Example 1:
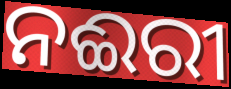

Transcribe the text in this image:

ନଈରୀ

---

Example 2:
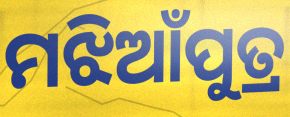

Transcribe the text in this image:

ମଝିଆଁପୁତ୍ର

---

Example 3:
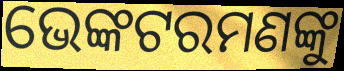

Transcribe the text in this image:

ଭେଙ୍କଟରମଣଙ୍କୁ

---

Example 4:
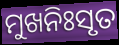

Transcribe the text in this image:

ମୁଖନିଃସୃତ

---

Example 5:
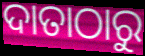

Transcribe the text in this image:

ଦାତାଠାରୁ